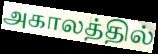
அகாலத்தில்